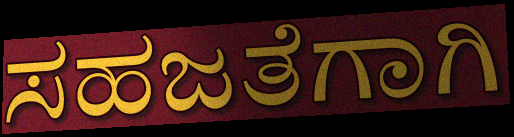
ಸಹಜತೆಗಾಗಿ